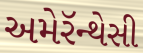
અમેરૅન્થેસી